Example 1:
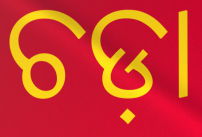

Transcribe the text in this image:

ଚଡ଼ା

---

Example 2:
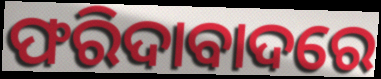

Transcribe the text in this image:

ଫରିଦାବାଦରେ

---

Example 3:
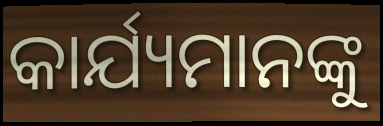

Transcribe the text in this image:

କାର୍ଯ୍ୟମାନଙ୍କୁ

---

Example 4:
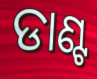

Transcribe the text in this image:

ଡାଣ୍ଟ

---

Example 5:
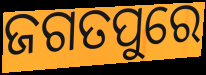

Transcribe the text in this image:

ଜଗତପୁରେ